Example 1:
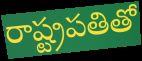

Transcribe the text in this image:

రాష్ట్రపతితో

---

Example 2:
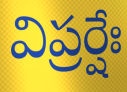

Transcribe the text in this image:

విప్రర్షేః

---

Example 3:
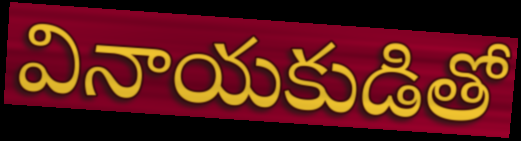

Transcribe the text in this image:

వినాయకుడితో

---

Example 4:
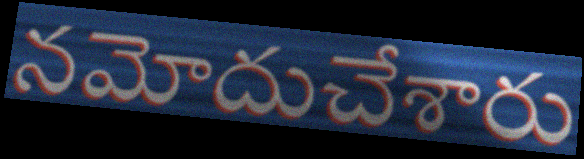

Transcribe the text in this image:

నమోదుచేశారు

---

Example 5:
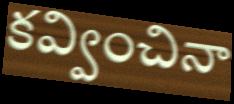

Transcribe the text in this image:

కవ్వించినా